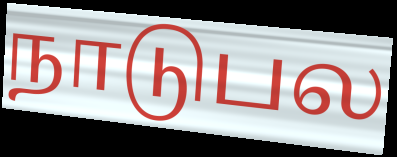
நாடுபல